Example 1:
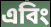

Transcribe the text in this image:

এবিং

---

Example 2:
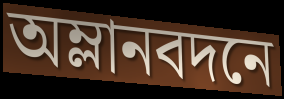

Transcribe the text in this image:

অম্লানবদনে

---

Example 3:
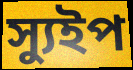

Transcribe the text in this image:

স্যুইপ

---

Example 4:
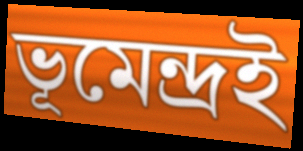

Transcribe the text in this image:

ভূমেন্দ্রই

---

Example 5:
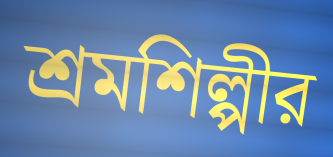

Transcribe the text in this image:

শ্রমশিল্পীর